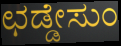
ಛಡ್ಡೇಸುಂ